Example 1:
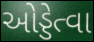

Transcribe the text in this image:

ઓડ્ડેત્વા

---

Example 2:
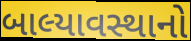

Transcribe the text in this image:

બાલ્યાવસ્થાનો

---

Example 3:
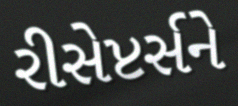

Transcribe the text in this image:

રીસેપ્ટર્સને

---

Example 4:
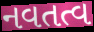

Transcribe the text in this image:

નવતત્વ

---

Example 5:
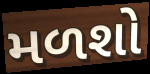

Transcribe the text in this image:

મળશો